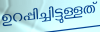
ഉറപ്പിച്ചിട്ടുള്ളത്